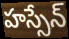
హస్సేన్